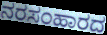
ನರಸಂಹಾರದ